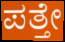
ಪತ್ತೇ